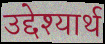
उद्देश्यार्थ